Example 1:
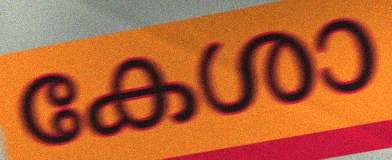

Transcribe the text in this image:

കേശാ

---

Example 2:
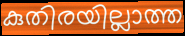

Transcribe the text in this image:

കുതിരയില്ലാത്ത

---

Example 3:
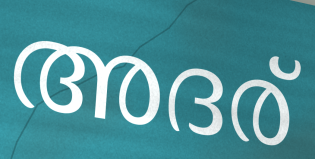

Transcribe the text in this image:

അദര്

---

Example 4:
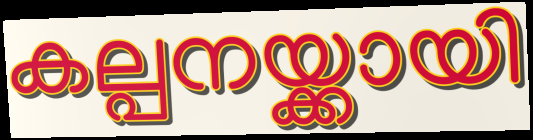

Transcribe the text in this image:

കല്പനയ്ക്കായി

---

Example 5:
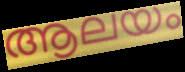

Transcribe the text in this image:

ആലയം